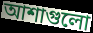
আশাগুলো